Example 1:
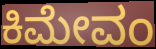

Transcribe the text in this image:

ಕಿಮೇವಂ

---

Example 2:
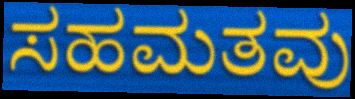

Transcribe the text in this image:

ಸಹಮತವು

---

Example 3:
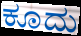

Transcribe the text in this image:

ಕೂದು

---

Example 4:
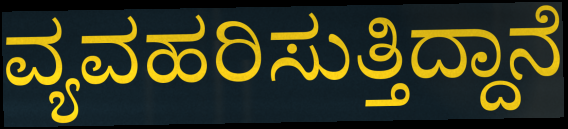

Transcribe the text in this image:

ವ್ಯವಹರಿಸುತ್ತಿದ್ದಾನೆ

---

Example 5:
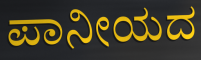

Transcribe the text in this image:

ಪಾನೀಯದ